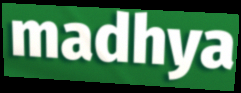
madhya